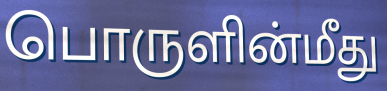
பொருளின்மீது